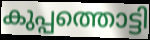
കുപ്പത്തൊട്ടി